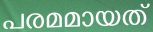
പരമമായത്